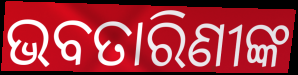
ଭବତାରିଣୀଙ୍କ